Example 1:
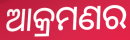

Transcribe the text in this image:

ଆକ୍ରମଣର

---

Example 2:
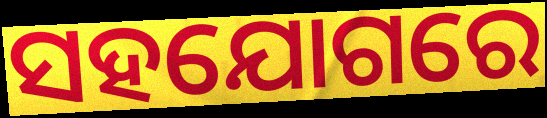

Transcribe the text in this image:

ସହଯୋଗରେ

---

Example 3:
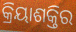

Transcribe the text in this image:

କ୍ରିୟାଶକ୍ତିର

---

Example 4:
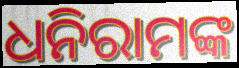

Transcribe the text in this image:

ଧନିରାମଙ୍କ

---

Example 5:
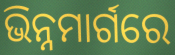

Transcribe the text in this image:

ଭିନ୍ନମାର୍ଗରେ